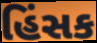
હિંસક